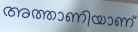
അത്താണിയാണ്